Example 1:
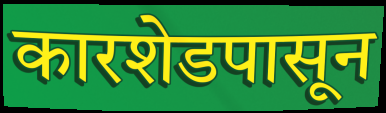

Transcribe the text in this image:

कारशेडपासून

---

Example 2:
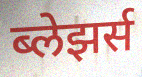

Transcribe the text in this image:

ब्लेझर्स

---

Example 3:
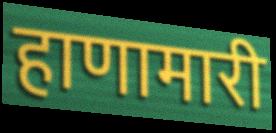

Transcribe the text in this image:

हाणामारी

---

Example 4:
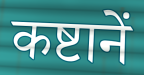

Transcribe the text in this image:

कष्टानें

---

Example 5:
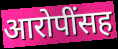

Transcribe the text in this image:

आरोपींसह